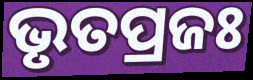
ଭୃତପ୍ରଜଃ